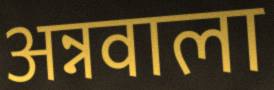
अन्नवाला